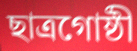
ছাত্রগোষ্ঠী